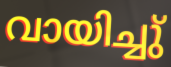
വായിച്ചു്